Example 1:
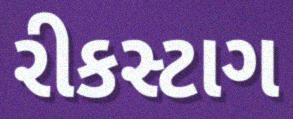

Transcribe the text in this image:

રીકસ્ટાગ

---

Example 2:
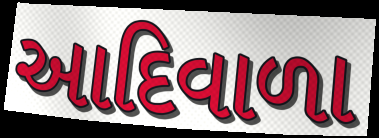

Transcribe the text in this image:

આદિવાળા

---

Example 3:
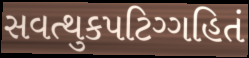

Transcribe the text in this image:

સવત્થુકપટિગ્ગહિતં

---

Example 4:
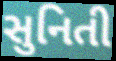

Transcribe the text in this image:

સુનિતી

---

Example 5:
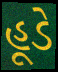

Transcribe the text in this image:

હૂડે